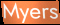
Myers